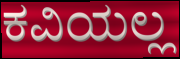
ಕವಿಯಲ್ಲ